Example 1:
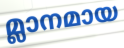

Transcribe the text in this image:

മ്ലാനമായ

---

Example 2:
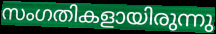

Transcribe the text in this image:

സംഗതികളായിരുന്നു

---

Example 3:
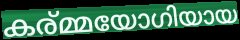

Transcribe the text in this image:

കര്മ്മയോഗിയായ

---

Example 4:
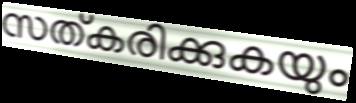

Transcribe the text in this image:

സത്കരിക്കുകയും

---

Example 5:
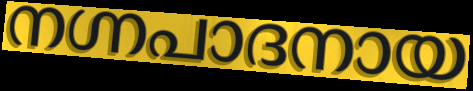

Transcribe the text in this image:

നഗ്നപാദനായ